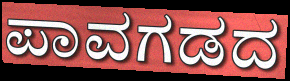
ಪಾವಗಡದ